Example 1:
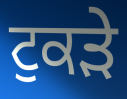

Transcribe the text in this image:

ਟੁਕੜੇ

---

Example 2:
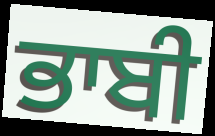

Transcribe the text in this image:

ਭਾਬੀ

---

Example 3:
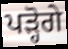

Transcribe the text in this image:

ਪੜ੍ਹੋਗੇ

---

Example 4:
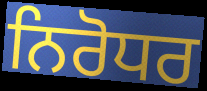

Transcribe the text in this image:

ਨਿਰੋਧਰ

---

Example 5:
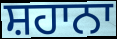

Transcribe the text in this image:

ਸ਼ਹਾਨਾ